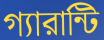
গ্যারান্টি